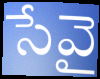
సేవై